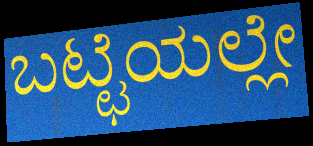
ಬಟ್ಟೆಯಲ್ಲೇ